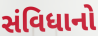
સંવિધાનો